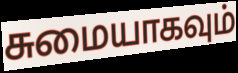
சுமையாகவும்